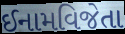
ઈનામવિજેતા